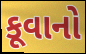
કૂવાનો